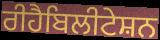
ਰੀਹੈਬਿਲੀਟੇਸ਼ਨ